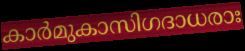
കാർമുകാസിഗദാധരാഃ